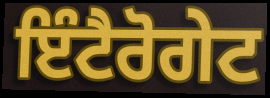
ਇੰਟੈਰੋਗੇਟ